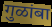
गुळांबा